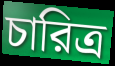
চারিত্র